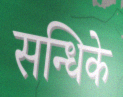
सन्धिके